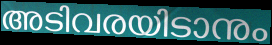
അടിവരയിടാനും